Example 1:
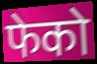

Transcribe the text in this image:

फेको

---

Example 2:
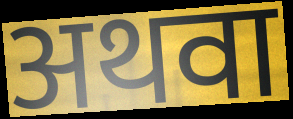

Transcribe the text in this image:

अथवा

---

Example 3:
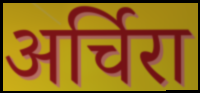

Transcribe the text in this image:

अर्चिरा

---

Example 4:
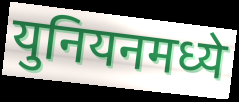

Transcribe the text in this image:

युनियनमध्ये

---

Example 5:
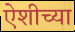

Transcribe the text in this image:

ऐशीच्या